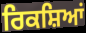
ਰਿਕਸ਼ਿਆਂ